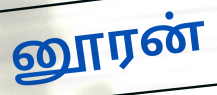
னூரன்